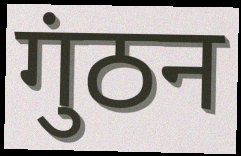
गुंठन